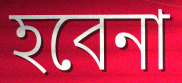
হবেনা